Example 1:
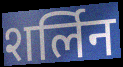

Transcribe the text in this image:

शर्लिन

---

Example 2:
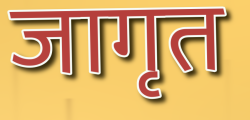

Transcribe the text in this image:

जागृत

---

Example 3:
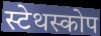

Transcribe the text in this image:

स्टेथस्कोप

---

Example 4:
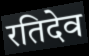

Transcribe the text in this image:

रतिदेव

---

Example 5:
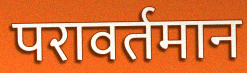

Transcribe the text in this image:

परावर्तमान